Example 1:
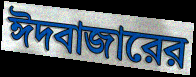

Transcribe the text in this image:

ঈদবাজারের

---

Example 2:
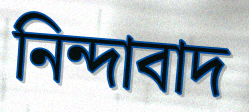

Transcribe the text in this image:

নিন্দাবাদ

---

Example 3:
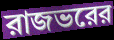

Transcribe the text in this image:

রাজভরের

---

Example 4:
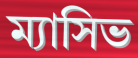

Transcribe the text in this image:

ম্যাসিভ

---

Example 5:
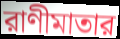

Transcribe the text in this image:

রাণীমাতার